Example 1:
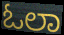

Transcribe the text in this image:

ಓಲಾ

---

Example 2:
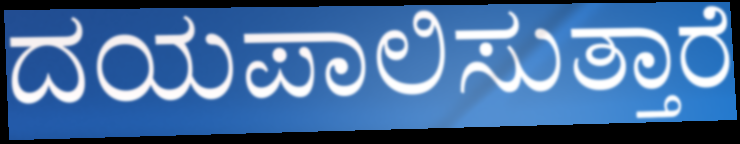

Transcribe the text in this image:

ದಯಪಾಲಿಸುತ್ತಾರೆ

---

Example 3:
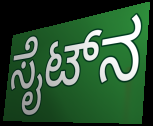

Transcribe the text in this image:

ಸೈಟ್‌ನ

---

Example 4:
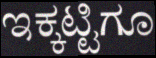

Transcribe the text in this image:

ಇಕ್ಕಟ್ಟಿಗೂ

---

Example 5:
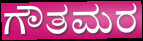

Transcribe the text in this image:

ಗೌತಮರ